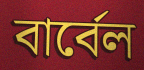
বার্বেল